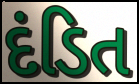
દંડિત